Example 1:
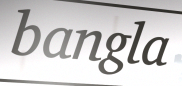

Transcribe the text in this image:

bangla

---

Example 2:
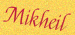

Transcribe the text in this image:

Mikheil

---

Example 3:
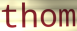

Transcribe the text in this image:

thom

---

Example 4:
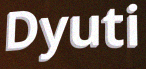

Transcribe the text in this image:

Dyuti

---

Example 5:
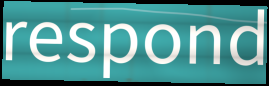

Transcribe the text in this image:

respond